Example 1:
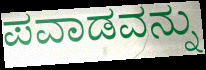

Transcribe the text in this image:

ಪವಾಡವನ್ನು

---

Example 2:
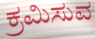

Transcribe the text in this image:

ಕ್ರಮಿಸುವ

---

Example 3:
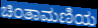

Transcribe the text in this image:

ಚಿಂತಾಮಣಿಯ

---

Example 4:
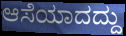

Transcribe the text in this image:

ಆಸೆಯಾದದ್ದು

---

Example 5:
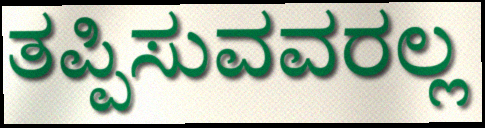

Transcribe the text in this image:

ತಪ್ಪಿಸುವವರಲ್ಲ